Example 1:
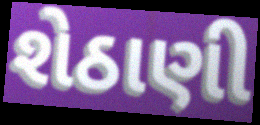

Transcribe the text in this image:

શેઠાણી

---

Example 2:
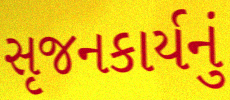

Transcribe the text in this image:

સૃજનકાર્યનું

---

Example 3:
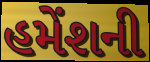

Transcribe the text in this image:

હમેંશની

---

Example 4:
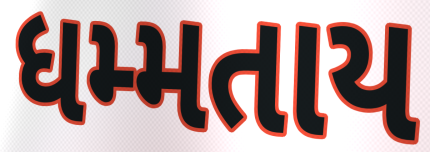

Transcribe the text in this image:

ધમ્મતાય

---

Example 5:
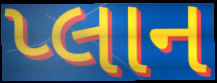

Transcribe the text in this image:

પ્લાન